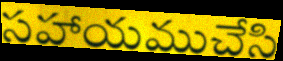
సహాయముచేసి